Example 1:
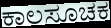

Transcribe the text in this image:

ಕಾಲಸೂಚಕ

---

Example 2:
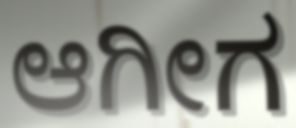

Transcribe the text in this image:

ಆಗೀಗ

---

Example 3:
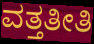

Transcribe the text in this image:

ವತ್ತತೀತಿ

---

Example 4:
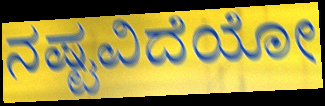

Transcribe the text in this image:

ನಷ್ಟವಿದೆಯೋ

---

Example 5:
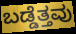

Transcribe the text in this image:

ಬಡ್ಡೆತ್ತವು